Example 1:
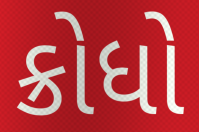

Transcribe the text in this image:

ક્રોધો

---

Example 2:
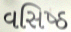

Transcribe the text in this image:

વસિષ્‍ઠ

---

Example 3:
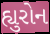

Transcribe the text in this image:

હ્યુરોન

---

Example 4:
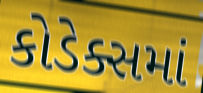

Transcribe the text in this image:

કોડેક્સમાં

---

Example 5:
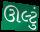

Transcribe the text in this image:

ઊલ્ટું